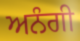
ਅਨੰਗੀ